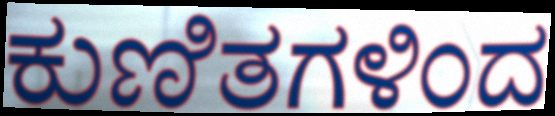
ಕುಣಿತಗಳಿಂದ